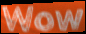
Wow